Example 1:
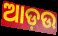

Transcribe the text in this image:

ଆଡ଼ଉ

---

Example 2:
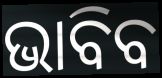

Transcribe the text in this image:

ଭାବିବ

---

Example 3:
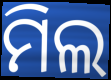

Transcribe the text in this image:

ମିଲ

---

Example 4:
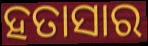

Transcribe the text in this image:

ହତାସାର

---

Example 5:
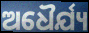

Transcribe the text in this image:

ଅଧୈର୍ଯ୍ୟ